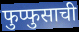
फुप्फुसाची